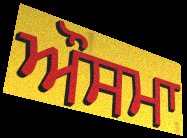
ਔਸਮਾ